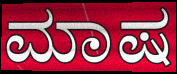
ಮಾಷ